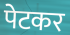
पेटकर